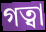
গত্বা